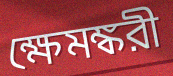
ক্ষেমঙ্করী